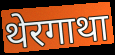
थेरगाथा